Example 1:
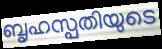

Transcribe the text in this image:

ബൃഹസ്പതിയുടെ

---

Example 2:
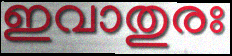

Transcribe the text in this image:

ഇവാതുരഃ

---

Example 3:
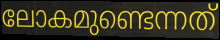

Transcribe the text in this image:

ലോകമുണ്ടെന്നത്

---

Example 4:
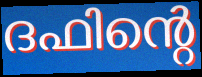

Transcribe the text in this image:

ദഫിന്റെ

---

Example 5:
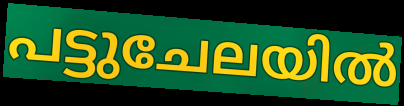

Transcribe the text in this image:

പട്ടുചേലയിൽ